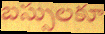
బస్సులకూ